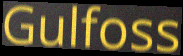
Gulfoss